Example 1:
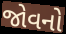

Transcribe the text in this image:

જોવનો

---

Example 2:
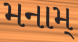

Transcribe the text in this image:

મનામ્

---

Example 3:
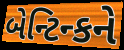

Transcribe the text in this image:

બેન્ટિન્કને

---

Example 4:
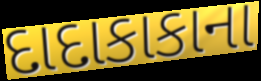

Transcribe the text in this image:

દાદાકાકાના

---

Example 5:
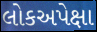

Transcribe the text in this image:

લોકઅપેક્ષા